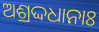
ଅଶ୍ରଦ୍ଦଧାନାଃ